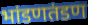
भांडणतंडण